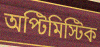
অপ্টিমিস্টিক